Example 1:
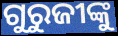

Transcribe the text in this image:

ଗୁରୁଜୀଙ୍କୁ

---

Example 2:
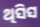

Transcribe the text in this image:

ଥିସିସ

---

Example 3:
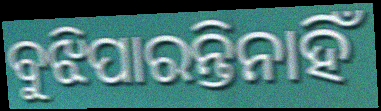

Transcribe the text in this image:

ବୁଝିପାରନ୍ତିନାହିଁ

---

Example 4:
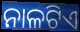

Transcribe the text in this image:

ନାଳଟିଏ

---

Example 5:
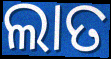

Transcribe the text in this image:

ଲାତ